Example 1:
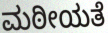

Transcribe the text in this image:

ಮಠೀಯತೆ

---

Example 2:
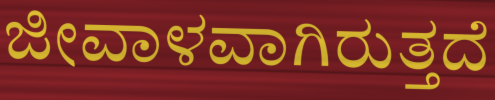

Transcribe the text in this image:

ಜೀವಾಳವಾಗಿರುತ್ತದೆ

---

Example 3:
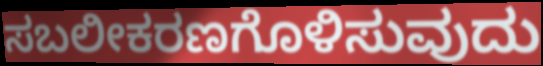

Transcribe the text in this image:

ಸಬಲೀಕರಣಗೊಳಿಸುವುದು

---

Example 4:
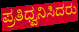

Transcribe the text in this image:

ಪ್ರತಿಧ್ವನಿಸಿದರು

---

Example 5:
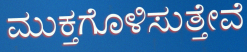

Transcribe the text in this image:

ಮುಕ್ತಗೊಳಿಸುತ್ತೇವೆ